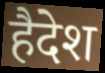
हैदेश